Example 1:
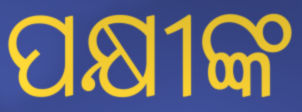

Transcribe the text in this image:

ପକ୍ଷୀଙ୍କ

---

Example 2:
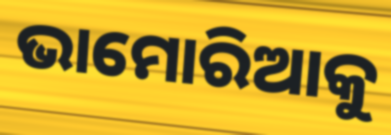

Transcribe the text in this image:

ଭାମୋରିଆକୁ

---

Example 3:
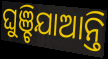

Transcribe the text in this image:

ଘୁଞ୍ଚିଯାଆନ୍ତି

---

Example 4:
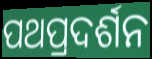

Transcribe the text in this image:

ପଥପ୍ରଦର୍ଶନ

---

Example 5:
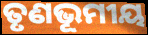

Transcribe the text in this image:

ତୃଣଭୂମୀୟ